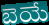
బెయే